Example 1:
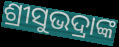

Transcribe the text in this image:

ଶ୍ରୀସୁଭଦ୍ରାଙ୍କ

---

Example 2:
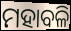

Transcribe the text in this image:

ମହାବଳି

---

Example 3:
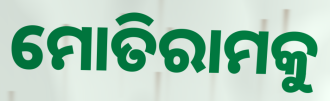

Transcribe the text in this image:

ମୋତିରାମକୁ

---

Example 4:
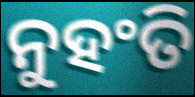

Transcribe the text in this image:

ନୁହଂତି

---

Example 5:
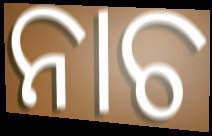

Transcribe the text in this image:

ନାଚ